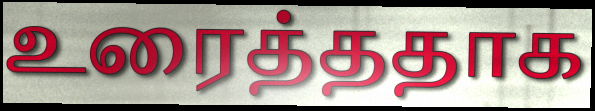
உரைத்ததாக